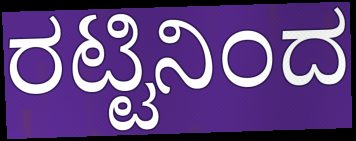
ರಟ್ಟಿನಿಂದ